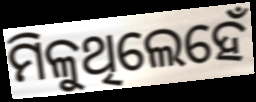
ମିଳୁଥିଲେହେଁ